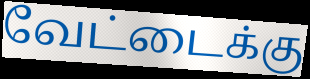
வேட்டைக்கு